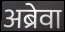
अब्रेवा